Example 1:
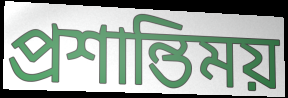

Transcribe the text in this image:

প্রশান্তিময়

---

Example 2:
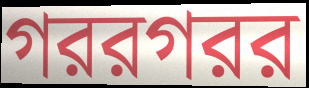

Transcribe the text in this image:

গররগরর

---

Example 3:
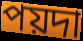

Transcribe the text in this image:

পয়দা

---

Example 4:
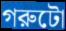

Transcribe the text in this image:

গরুটো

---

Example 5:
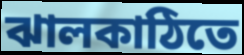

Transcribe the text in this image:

ঝালকাঠিতে